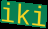
iki